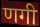
णगी